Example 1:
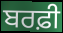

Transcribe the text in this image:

ਬਰਫ਼ੀ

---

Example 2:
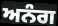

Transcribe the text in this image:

ਅਨੰਗ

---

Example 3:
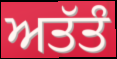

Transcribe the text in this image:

ਅਤੱਤੰ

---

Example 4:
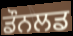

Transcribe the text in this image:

ਡੌਨਲਡ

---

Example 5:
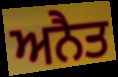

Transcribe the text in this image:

ਅਨੈਤ